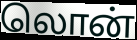
லொன்